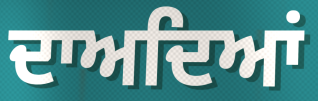
ਦਾਅਦਿਆਂ